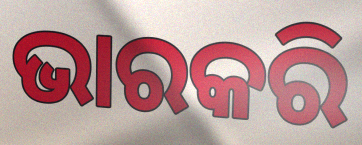
ଭାରକରି